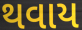
થવાય